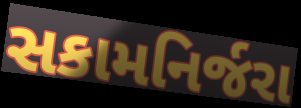
સકામનિર્જરા